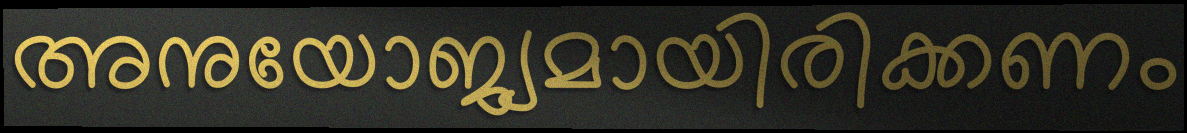
അനുയോജ്യമായിരിക്കണം